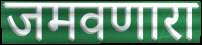
जमवणारा